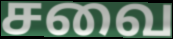
சவை